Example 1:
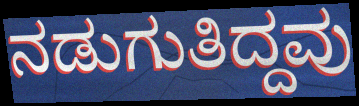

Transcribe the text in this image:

ನಡುಗುತಿದ್ದವು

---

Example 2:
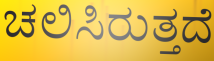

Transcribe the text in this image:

ಚಲಿಸಿರುತ್ತದೆ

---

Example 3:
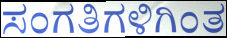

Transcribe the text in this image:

ಸಂಗತಿಗಳಿಗಿಂತ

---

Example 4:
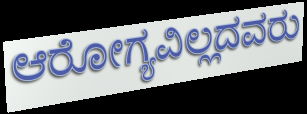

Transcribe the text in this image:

ಆರೋಗ್ಯವಿಲ್ಲದವರು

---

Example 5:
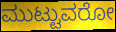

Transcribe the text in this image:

ಮುಟ್ಟುವರೋ